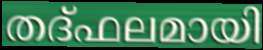
തദ്ഫലമായി